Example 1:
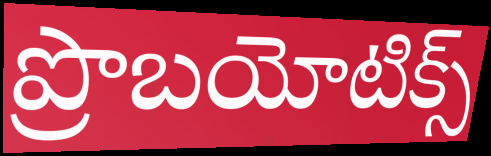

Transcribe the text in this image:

ప్రొబయోటిక్స్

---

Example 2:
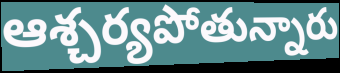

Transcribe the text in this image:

ఆశ్చర్యపోతున్నారు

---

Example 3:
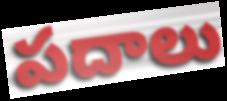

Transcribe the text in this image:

పదాలు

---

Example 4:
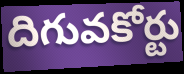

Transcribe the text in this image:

దిగువకోర్టు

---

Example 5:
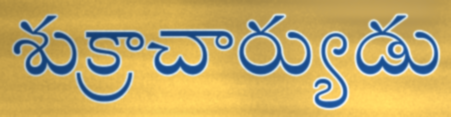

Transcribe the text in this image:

శుక్రాచార్యుడు